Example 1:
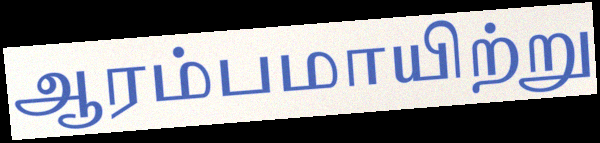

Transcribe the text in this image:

ஆரம்பமாயிற்று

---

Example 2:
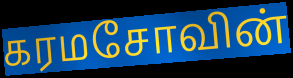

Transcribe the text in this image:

கரமசோவின்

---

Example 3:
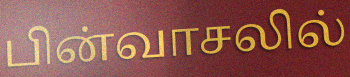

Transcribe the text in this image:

பின்வாசலில்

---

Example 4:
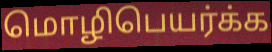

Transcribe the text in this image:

மொழிபெயர்க்க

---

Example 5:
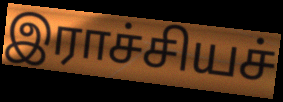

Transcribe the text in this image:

இராச்சியச்